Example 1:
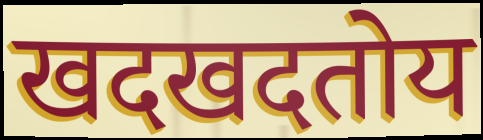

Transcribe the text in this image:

खदखदतोय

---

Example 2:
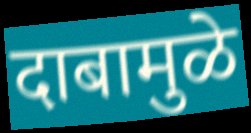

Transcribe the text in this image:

दाबामुळे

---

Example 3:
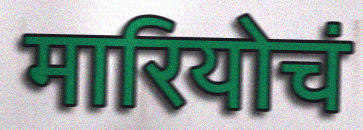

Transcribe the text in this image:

मारियोचं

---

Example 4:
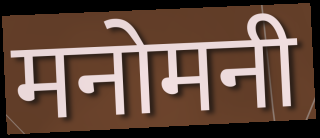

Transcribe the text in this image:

मनोमनी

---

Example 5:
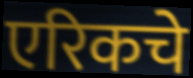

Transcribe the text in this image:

एरिकचे